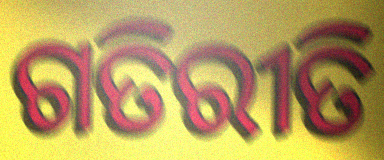
ଗତିରୀତି